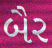
બૈર